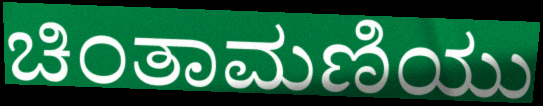
ಚಿಂತಾಮಣಿಯು